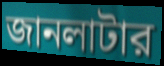
জানলাটার